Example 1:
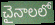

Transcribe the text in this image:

చైనాలలో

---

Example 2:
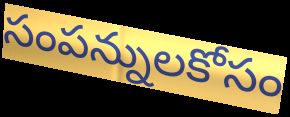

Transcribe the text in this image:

సంపన్నులకోసం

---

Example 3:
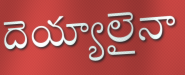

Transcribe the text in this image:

దెయ్యాలైనా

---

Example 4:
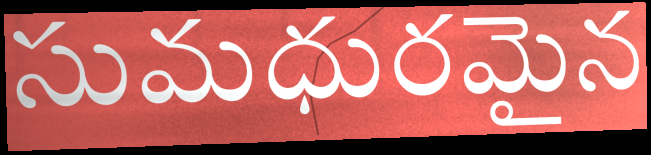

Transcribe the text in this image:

సుమధురమైన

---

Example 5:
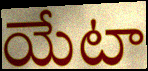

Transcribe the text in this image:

యేటా